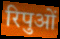
रिपुओं